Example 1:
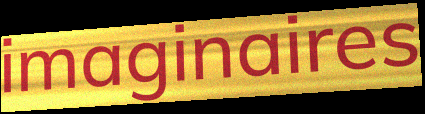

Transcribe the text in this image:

imaginaires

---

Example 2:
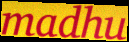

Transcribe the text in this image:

madhu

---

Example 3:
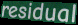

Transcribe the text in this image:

residual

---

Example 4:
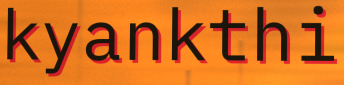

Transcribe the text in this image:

kyankthi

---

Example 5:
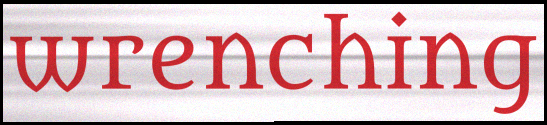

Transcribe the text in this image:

wrenching